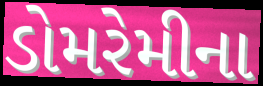
ડોમરેમીના